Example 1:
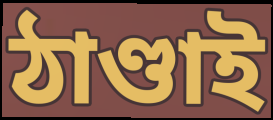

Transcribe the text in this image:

ঠাণ্ডাই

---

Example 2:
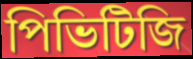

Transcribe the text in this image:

পিভিটিজি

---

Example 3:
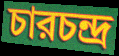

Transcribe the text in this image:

চারচন্দ্র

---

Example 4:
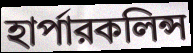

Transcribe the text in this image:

হার্পারকলিন্স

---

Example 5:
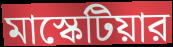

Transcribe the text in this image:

মাস্কেটিয়ার